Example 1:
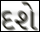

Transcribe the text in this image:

દશે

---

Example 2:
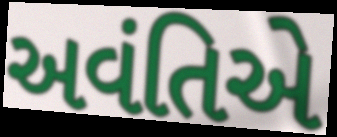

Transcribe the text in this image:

અવંતિએ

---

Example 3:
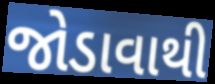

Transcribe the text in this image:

જોડાવાથી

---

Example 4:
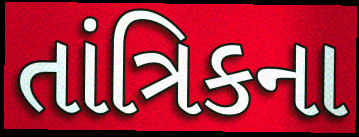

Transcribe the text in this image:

તાંત્રિકના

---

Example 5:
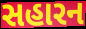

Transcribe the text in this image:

સહારન